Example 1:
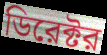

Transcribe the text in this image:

ডিরেক্টর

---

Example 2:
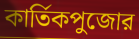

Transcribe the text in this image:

কার্তিকপুজোর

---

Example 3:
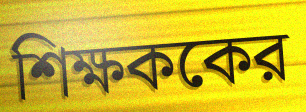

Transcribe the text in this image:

শিক্ষককের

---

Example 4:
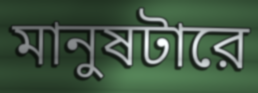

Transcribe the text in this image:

মানুষটারে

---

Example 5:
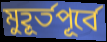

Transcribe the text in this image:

মুহূর্তপূর্বে